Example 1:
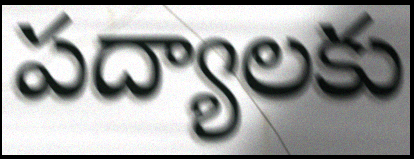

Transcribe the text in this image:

పద్యాలకు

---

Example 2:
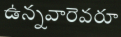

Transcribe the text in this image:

ఉన్నవారెవరూ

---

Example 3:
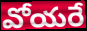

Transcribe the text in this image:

వోయరే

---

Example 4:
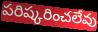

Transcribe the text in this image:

పరిష్కరించలేవు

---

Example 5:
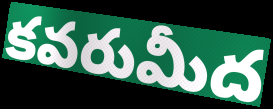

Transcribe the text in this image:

కవరుమీద